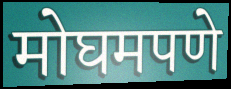
मोघमपणे